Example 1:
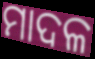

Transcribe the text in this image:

ମାଦଳ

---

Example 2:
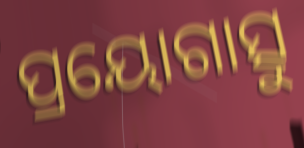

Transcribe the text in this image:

ପ୍ରୟୋଗାତ୍ସୁ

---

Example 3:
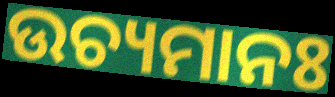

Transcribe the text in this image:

ଉଚ୍ୟମାନଃ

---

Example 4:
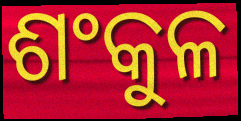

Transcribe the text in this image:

ଶଂକୁଳ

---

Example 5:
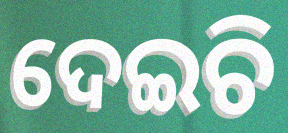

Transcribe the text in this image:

ଦେଇଚି